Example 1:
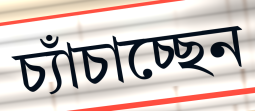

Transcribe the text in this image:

চ্যাঁচাচ্ছেন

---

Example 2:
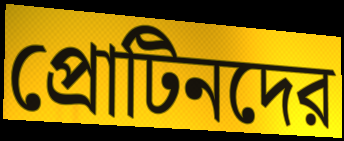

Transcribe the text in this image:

প্রোটিনদের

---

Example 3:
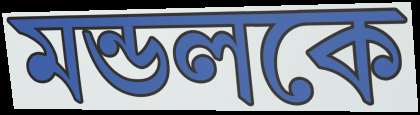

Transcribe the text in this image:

মন্ডলকে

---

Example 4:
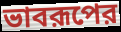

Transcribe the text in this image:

ভাবরূপের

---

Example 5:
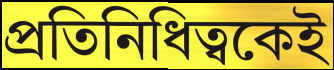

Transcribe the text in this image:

প্রতিনিধিত্বকেই